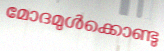
മോദമുൾക്കൊണ്ടു